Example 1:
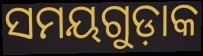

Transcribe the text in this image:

ସମୟଗୁଡ଼ାକ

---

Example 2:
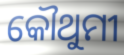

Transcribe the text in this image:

କୌଥୁମୀ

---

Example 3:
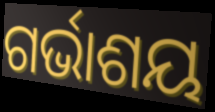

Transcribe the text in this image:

ଗର୍ଭାଶୟ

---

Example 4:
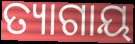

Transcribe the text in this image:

ତ୍ୟାଗାୟ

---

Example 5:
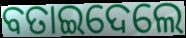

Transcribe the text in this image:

ବତାଇଦେଲେ